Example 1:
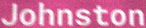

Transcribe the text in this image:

Johnston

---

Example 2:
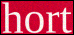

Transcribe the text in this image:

hort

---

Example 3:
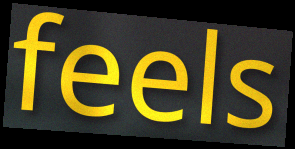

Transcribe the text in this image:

feels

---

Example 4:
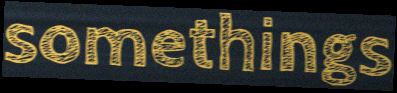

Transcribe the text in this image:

somethings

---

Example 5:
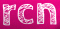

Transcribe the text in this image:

rcn